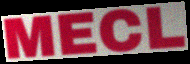
MECL